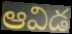
ఆవిడ